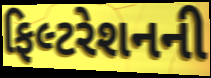
ફિલ્ટરેશનની